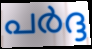
പർദ്ദ